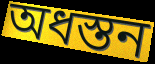
অধস্তন